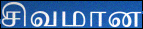
சிவமான